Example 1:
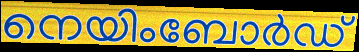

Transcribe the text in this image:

നെയിംബോർഡ്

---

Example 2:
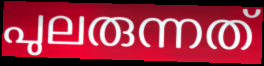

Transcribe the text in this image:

പുലരുന്നത്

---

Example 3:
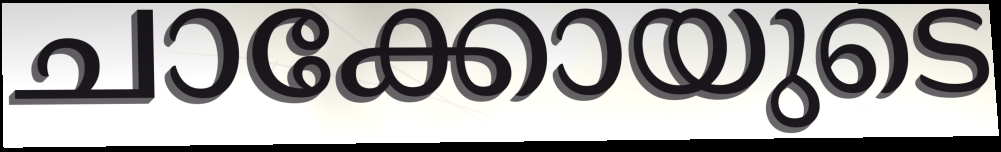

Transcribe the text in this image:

ചാക്കോയുടെ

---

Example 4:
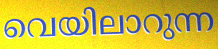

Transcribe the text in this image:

വെയിലാറുന്ന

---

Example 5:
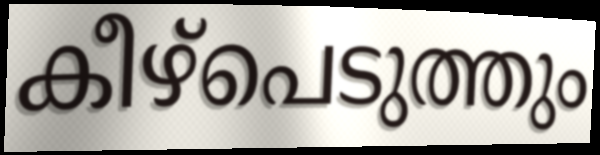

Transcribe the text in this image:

കീഴ്പെടുത്തും